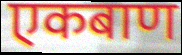
एकबाण